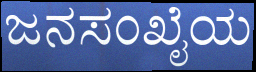
ಜನಸಂಖೈಯ